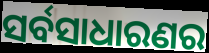
ସର୍ବସାଧାରଣର